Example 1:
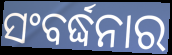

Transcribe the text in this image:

ସଂବର୍ଦ୍ଧନାର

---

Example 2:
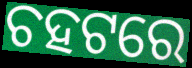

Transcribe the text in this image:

ଚହଟରେ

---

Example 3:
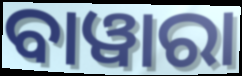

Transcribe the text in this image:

ବାୱାରା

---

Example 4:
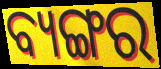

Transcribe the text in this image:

ବ୍ୟଙ୍ଗର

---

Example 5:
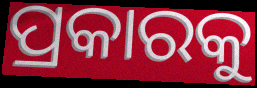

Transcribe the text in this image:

ପ୍ରକାରକୁ